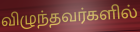
விழுந்தவர்களில்